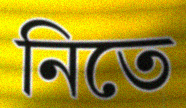
নিতে